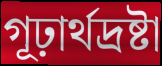
গূঢ়ার্থদ্রষ্টা